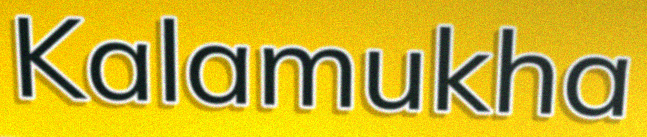
Kalamukha